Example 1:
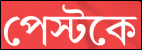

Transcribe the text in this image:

পেস্টকে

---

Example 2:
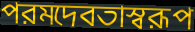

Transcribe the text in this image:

পরমদেবতাস্বরূপ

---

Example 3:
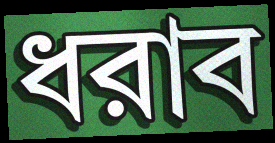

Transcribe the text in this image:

ধরাব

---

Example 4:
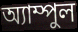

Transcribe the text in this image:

অ্যাম্পুল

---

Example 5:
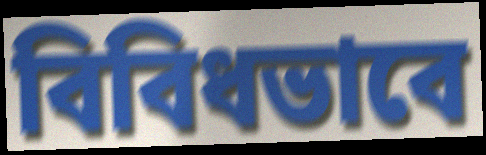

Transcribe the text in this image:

বিবিধভাবে